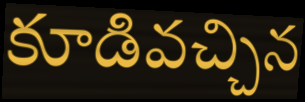
కూడివచ్చిన